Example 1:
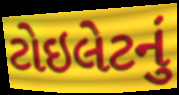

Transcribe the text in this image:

ટોઇલેટનું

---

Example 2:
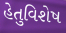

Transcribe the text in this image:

હેતુવિશેષ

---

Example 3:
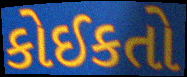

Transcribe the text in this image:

કોઈકતો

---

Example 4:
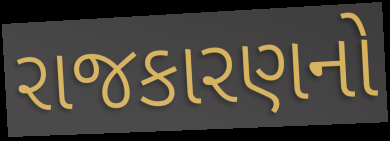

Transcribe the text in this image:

રાજકારણનો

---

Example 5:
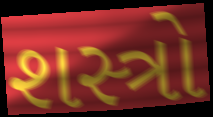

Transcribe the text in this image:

શસ્‍ત્રો